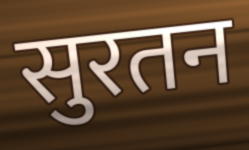
सुरतन